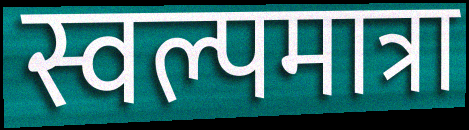
स्वल्पमात्रा